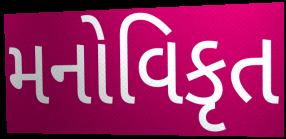
મનોવિકૃત